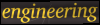
engineering